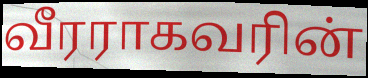
வீரராகவரின்